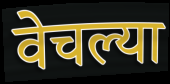
वेचल्या